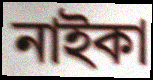
নাইকা